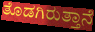
ತೊಡಗಿರುತ್ತಾನೆ